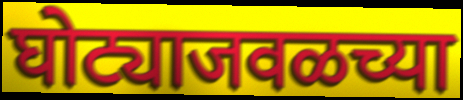
घोट्याजवळच्या